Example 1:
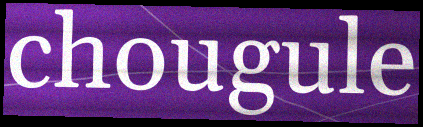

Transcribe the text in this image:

chougule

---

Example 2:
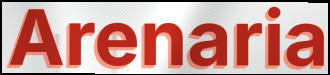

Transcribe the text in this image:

Arenaria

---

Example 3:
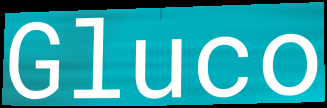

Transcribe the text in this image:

Gluco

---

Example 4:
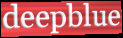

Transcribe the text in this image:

deepblue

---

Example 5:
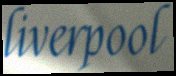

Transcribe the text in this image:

liverpool